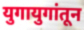
युगायुगांतून